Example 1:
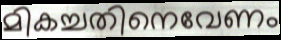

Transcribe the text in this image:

മികച്ചതിനെവേണം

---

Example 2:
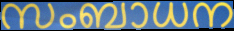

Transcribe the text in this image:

സംബാധന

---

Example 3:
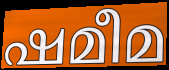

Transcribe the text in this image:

ഷമീമ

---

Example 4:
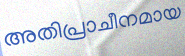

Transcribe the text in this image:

അതിപ്രാചീനമായ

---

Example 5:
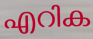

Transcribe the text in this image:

എറിക